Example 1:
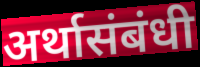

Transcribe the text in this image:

अर्थासंबंधी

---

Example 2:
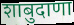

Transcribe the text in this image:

शाबुदाणा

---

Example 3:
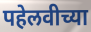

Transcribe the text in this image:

पहेलवीच्या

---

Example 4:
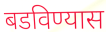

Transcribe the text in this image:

बडविण्यास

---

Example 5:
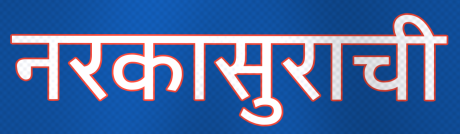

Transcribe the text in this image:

नरकासुराची